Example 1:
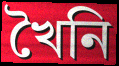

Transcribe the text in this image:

খৈনি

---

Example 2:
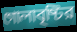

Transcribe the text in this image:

গোলাবৃষ্টির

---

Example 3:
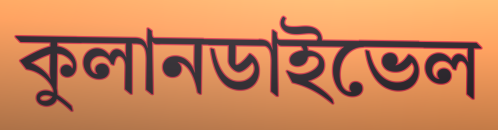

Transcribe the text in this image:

কুলানডাইভেল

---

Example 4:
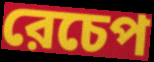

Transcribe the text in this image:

রেচেপ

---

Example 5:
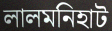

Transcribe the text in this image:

লালমনিহাট